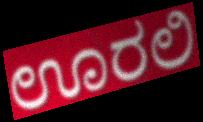
ಊರಲಿ